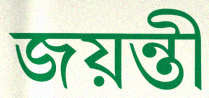
জয়ন্তী